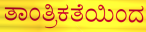
ತಾಂತ್ರಿಕತೆಯಿಂದ